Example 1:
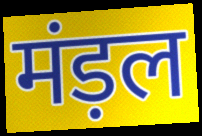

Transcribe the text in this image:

मंड़ल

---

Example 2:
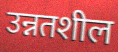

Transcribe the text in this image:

उन्नतशील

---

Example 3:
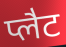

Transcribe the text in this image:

प्लैट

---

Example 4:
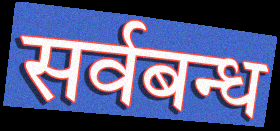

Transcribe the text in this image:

सर्वबन्ध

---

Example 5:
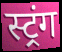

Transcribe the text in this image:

स्ट्रंग